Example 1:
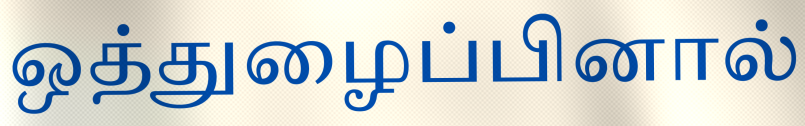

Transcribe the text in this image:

ஒத்துழைப்பினால்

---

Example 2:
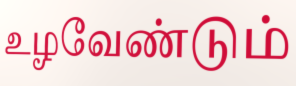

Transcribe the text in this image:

உழவேண்டும்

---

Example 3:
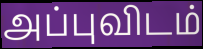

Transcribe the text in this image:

அப்புவிடம்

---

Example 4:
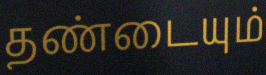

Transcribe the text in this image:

தண்டையும்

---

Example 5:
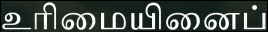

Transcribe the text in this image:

உரிமையினைப்